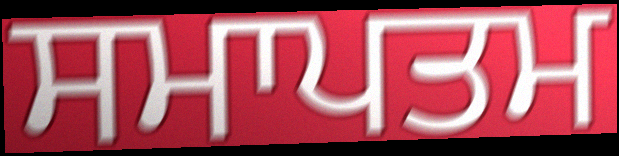
ਸਮਾਪਤਮ